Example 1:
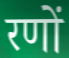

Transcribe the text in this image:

रणों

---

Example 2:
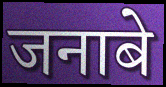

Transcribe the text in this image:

जनाबे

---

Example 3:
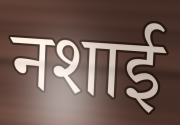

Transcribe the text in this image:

नशाई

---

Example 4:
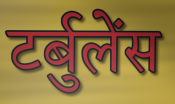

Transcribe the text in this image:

टर्बुलेंस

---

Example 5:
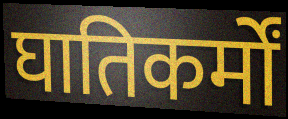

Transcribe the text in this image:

घातिकर्मों